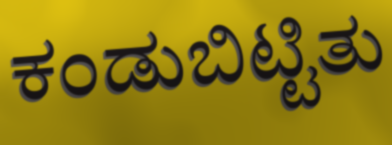
ಕಂಡುಬಿಟ್ಟಿತು